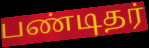
பண்டிதர்